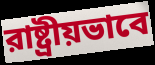
রাষ্ট্রীয়ভাবে